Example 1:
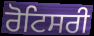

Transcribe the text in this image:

ਰੋਟਿਸਰੀ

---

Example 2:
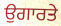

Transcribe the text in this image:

ਉਗਾਰਤੇ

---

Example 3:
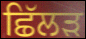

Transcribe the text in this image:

ਛਿੱਲੜ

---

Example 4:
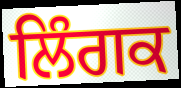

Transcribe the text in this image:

ਲਿੰਗਕ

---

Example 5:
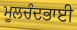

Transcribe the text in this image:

ਮੂਲਚੰਦਭਾਈ